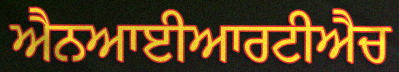
ਐਨਆਈਆਰਟੀਐਚ